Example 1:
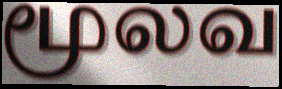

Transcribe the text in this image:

மூலவ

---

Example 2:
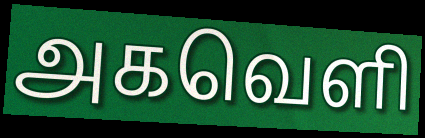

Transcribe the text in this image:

அகவெளி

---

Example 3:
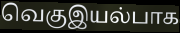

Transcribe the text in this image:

வெகுஇயல்பாக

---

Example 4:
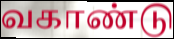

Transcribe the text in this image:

வகாண்டு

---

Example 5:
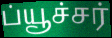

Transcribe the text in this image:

ப்யூச்சர்